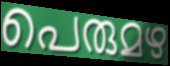
പെരുമഴ